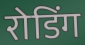
रोडिंग